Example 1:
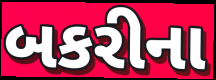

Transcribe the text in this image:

બકરીના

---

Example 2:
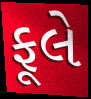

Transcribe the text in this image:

ફૂલે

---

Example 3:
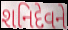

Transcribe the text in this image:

શનિદેવને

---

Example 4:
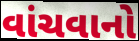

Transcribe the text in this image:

વાંચવાનો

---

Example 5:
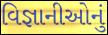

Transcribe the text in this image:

વિજ્ઞાનીઓનું